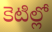
కెటిల్లో